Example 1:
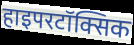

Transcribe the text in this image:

हाइपरटॉक्सिक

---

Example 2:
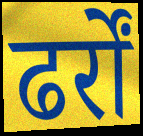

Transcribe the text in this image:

ढर्रों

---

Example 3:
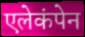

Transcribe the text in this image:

एलेकंपेन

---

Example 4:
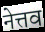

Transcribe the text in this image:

नेत्तव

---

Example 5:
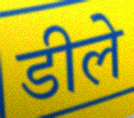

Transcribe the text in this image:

डीले